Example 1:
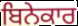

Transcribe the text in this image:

ਬਿਨੇਕਾਰ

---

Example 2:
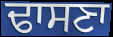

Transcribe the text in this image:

ਢਾਸਣਾ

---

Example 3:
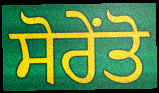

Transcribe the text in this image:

ਸੋਰੇਂਤੋ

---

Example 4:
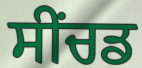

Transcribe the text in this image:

ਸੀਂਚਡ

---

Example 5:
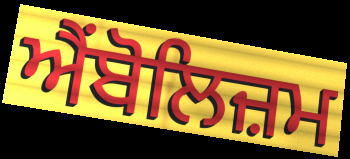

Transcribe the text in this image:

ਐਂਬੋਲਿਜ਼ਮ